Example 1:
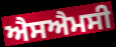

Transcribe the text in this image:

ਐਸਐਮਸੀ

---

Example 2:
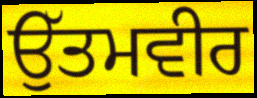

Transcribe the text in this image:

ਉੱਤਮਵੀਰ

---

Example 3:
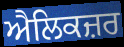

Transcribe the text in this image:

ਐਲਿਕਜ਼ਰ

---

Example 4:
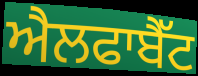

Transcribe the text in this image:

ਐਲਫਾਬੈੱਟ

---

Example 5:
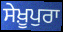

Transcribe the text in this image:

ਸੇਖ਼ੂਪੁਰਾ